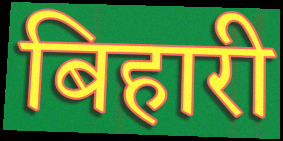
बिहारी